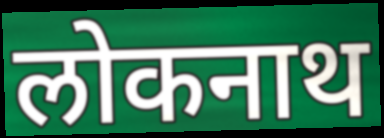
लोकनाथ